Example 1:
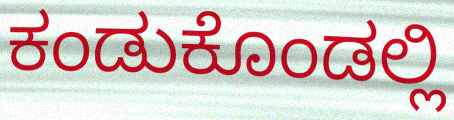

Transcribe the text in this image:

ಕಂಡುಕೊಂಡಲ್ಲಿ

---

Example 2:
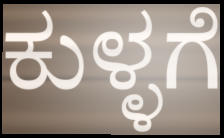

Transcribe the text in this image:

ಕುಳ್ಳಗೆ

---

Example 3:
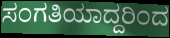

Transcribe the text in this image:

ಸಂಗತಿಯಾದ್ದರಿಂದ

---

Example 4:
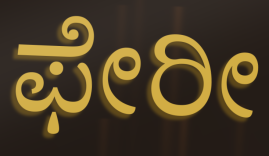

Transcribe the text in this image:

ಫೇರೀ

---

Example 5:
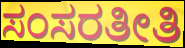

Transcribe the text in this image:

ಸಂಸರತೀತಿ